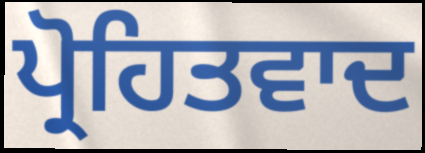
ਪ੍ਰੋਹਿਤਵਾਦ